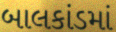
બાલકાંડમાં